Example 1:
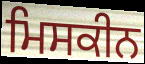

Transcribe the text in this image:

ਮਿਸਕੀਨ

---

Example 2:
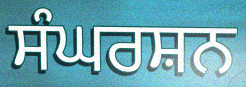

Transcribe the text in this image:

ਸੰਘਰਸ਼ਨ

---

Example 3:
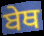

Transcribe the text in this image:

ਬੇਥ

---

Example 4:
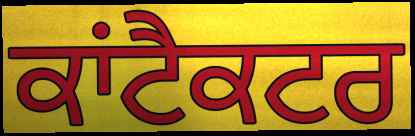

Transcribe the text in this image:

ਕਾਂਟੈਕਟਰ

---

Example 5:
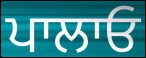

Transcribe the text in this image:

ਪਾਲਾਓ